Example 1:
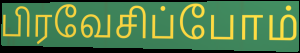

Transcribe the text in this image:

பிரவேசிப்போம்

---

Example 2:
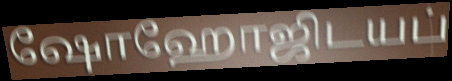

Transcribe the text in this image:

ஷோஹோஜிடயப்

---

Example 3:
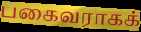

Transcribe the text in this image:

பகைவராகக்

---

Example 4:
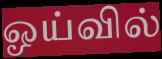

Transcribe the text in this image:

ஓய்வில்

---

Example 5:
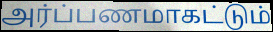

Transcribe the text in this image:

அர்ப்பணமாகட்டும்